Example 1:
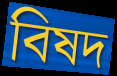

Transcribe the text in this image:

বিষদ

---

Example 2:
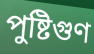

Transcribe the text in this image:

পুষ্টিগুণ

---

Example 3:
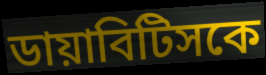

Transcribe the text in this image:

ডায়াবিটিসকে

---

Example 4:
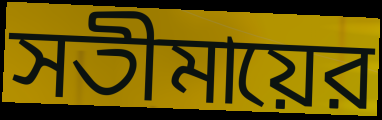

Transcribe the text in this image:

সতীমায়ের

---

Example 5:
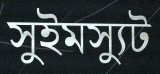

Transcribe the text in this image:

সুইমস্যুট